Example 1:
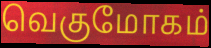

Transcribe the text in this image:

வெகுமோகம்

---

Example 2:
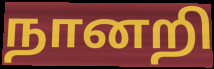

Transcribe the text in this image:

நானறி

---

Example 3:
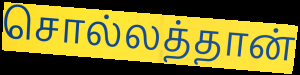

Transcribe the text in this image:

சொல்லத்தான்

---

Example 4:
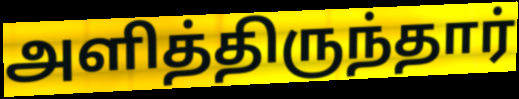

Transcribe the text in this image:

அளித்திருந்தார்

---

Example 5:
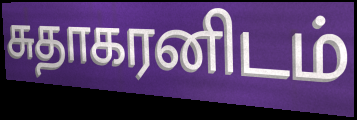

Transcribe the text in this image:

சுதாகரனிடம்